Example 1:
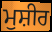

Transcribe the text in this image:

ਮੁਸ਼ੀਰ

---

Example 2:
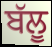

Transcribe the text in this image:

ਬੱਲੂ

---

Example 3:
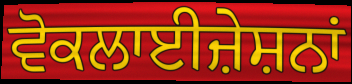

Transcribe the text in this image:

ਵੋਕਲਾਈਜ਼ੇਸ਼ਨਾਂ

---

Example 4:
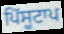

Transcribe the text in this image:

ਪਿੱਸੂਟਾਪ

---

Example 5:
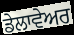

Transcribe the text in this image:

ਡੇਲਾਵੇਅਰ